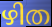
ഴിത